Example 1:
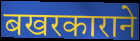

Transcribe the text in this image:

बखरकाराने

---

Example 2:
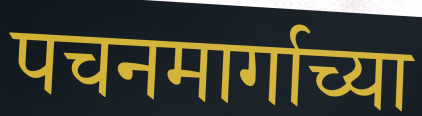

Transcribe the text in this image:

पचनमार्गाच्या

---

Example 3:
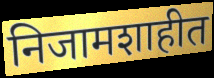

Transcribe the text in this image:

निजामशाहीत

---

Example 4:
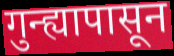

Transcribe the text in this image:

गुन्ह्यापासून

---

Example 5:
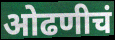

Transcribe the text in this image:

ओढणीचं